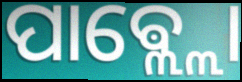
ପାଵ୍ଲ୍ଲୋ